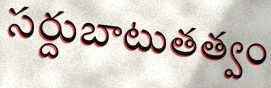
సర్దుబాటుతత్వం